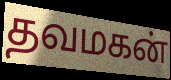
தவமகன்